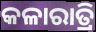
କଳାରାତ୍ରି